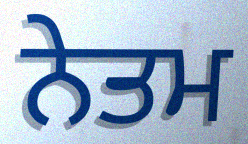
ਨੇਤਮ